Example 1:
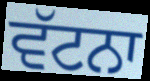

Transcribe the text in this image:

ਵੱਟਨਾ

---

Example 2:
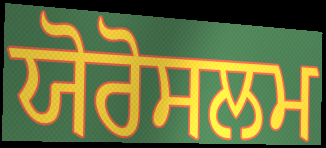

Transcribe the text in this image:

ਯੋਰੋਸਲਮ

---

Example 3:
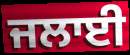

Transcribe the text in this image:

ਜਲਾਈ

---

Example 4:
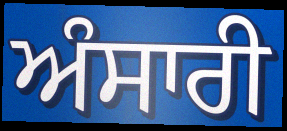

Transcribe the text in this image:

ਅੰਸਾਰੀ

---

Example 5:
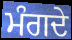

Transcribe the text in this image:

ਮੰਗਦੇ